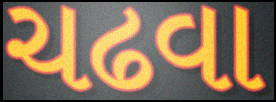
ચઢવા